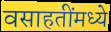
वसाहतींमध्ये